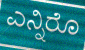
ಎನ್ನಿರೊ